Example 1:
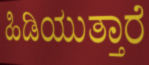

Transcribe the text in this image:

ಹಿಡಿಯುತ್ತಾರೆ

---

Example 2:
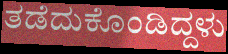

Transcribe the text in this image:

ತಡೆದುಕೊಂಡಿದ್ದಳು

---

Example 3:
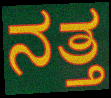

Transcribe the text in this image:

ನತ್ತ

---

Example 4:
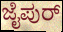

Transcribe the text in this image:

ಜೈಪುರ್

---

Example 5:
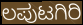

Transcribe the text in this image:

ಲಪುಟಗಿರಿ